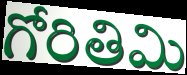
గోరితిమి